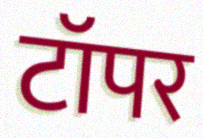
टॉपर